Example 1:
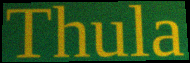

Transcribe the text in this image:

Thula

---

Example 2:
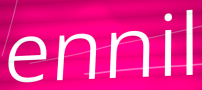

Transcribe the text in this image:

ennil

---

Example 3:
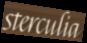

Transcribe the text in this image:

sterculia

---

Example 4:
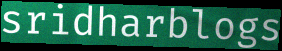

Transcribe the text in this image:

sridharblogs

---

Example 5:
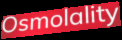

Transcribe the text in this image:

Osmolality